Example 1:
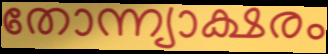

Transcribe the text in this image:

തോന്ന്യാക്ഷരം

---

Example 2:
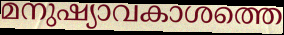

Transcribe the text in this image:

മനുഷ്യാവകാശത്തെ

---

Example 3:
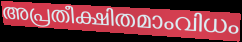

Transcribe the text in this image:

അപ്രതീക്ഷിതമാംവിധം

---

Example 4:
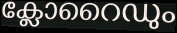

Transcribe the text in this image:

ക്ലോറൈഡും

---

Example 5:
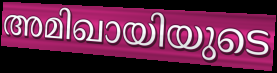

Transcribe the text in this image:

അമിഖായിയുടെ